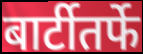
बार्टीतर्फे